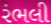
રંભલી